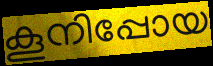
കൂനിപ്പോയ